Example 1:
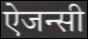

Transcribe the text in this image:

ऐजन्सी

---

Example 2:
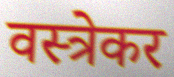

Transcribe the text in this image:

वस्त्रेकर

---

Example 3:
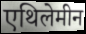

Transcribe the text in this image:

एथिलेमीन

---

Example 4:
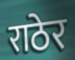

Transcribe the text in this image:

राठेर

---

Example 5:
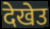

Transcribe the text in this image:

देखेउ